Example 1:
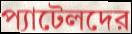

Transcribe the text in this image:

প্যাটেলদের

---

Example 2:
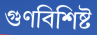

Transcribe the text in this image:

গুণবিশিষ্ট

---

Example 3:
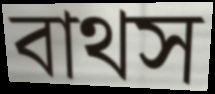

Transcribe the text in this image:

বাথস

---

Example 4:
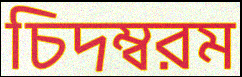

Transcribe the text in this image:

চিদম্বরম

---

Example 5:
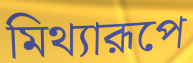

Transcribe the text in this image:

মিথ্যারূপে